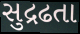
સુદ્રઢતા